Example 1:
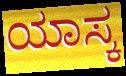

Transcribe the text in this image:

ಯಾಸ್ಕ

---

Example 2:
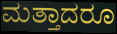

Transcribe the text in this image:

ಮತ್ತಾದರೂ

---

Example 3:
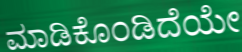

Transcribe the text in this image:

ಮಾಡಿಕೊಂಡಿದೆಯೇ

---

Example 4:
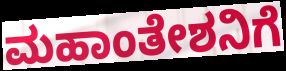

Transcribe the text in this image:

ಮಹಾಂತೇಶನಿಗೆ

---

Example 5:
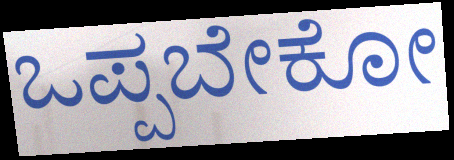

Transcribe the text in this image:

ಒಪ್ಪಬೇಕೋ